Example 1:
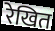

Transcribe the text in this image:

रेखित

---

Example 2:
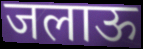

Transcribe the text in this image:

जलाऊ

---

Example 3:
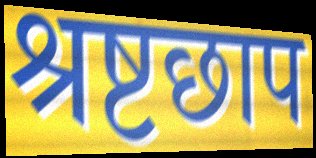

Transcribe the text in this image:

श्रष्टछाप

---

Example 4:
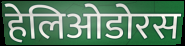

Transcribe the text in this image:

हेलिओडोरस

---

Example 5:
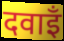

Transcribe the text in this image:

दवाइँ